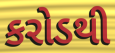
કરોડથી